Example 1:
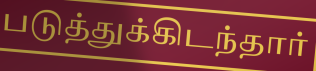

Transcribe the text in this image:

படுத்துக்கிடந்தார்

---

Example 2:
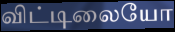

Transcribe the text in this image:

விட்டிலையோ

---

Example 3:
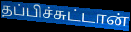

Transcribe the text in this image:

தப்பிச்சுட்டான்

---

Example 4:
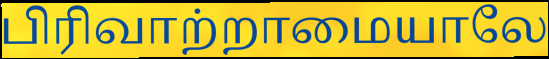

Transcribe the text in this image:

பிரிவாற்றாமையாலே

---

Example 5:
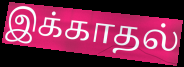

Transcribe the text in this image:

இக்காதல்